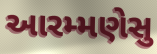
આરમ્મણેસુ